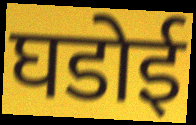
घडोई